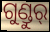
ଗୁଣ୍ଡୁର୍